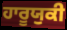
ਹਾਰੂਯੁਕੀ